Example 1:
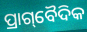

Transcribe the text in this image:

ପ୍ରାଗ୍‌ବୈଦିକ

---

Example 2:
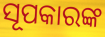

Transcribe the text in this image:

ସୂପକାରଙ୍କ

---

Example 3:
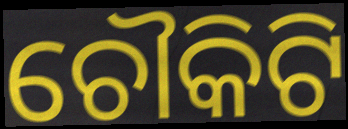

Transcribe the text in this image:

ଚୌକିଟି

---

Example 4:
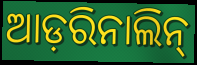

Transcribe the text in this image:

ଆଡ଼ରିନାଲିନ୍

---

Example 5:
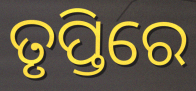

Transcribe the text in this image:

ତୃପ୍ତିରେ